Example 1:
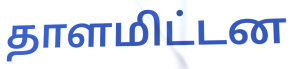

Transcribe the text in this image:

தாளமிட்டன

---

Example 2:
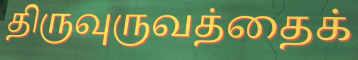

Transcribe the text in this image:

திருவுருவத்தைக்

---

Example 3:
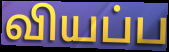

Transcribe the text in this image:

வியப்ப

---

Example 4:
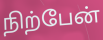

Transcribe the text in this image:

நிற்பேன்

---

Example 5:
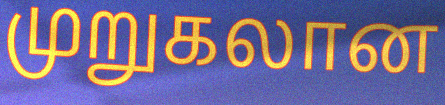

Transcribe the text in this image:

முறுகலான